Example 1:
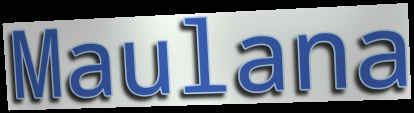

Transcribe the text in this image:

Maulana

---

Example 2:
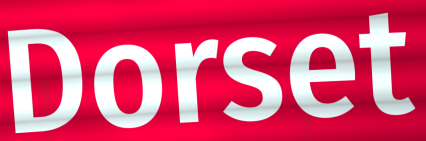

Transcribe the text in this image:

Dorset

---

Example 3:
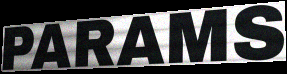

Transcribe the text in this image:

PARAMS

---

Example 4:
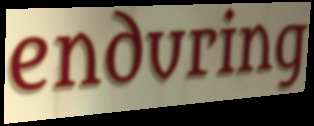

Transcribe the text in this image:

enduring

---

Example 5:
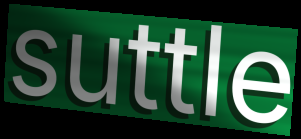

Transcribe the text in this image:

suttle